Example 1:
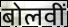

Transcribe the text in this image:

बोलवीं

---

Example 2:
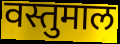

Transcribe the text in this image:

वस्तुमाल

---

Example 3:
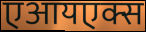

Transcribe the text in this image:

एआयएक्स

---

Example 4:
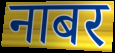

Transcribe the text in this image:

नाबर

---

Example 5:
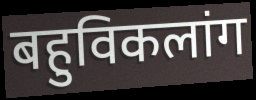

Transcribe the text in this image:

बहुविकलांग